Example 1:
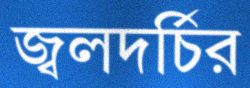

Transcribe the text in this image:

জ্বলদর্চির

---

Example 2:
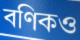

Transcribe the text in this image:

বণিকও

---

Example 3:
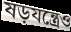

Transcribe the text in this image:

ষড়যন্ত্রেও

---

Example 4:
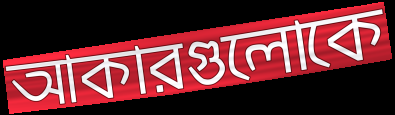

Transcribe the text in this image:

আকারগুলোকে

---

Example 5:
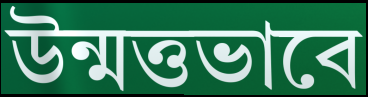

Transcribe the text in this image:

উন্মত্তভাবে